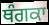
ਥੰਗਕਾ